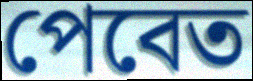
পেবেত